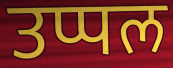
उप्पल